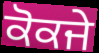
ਕੋਕਜੇ